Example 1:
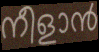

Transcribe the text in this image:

നീളാൻ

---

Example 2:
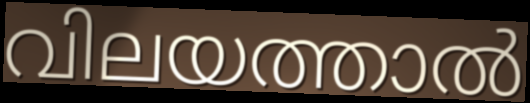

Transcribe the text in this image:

വിലയത്താൽ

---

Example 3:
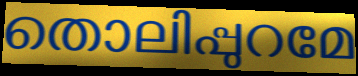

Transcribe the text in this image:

തൊലിപ്പുറമേ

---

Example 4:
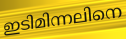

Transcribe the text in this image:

ഇടിമിന്നലിനെ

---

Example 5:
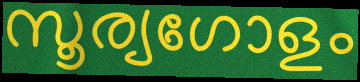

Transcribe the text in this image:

സൂര്യഗോളം